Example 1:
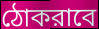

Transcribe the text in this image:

ঠোকরাবে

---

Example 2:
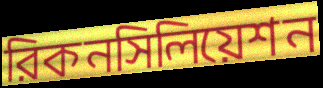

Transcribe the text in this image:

রিকনসিলিয়েশন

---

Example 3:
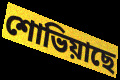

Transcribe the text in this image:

শোভিয়াছে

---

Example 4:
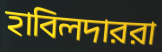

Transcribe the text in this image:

হাবিলদাররা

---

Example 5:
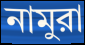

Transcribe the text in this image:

নামুরা